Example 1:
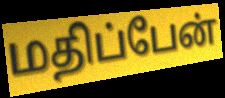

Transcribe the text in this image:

மதிப்பேன்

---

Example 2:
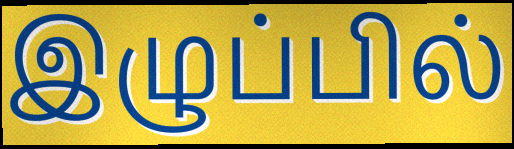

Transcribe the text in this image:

இழுப்பில்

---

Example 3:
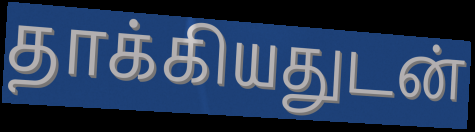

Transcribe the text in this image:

தாக்கியதுடன்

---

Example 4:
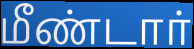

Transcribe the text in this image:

மீண்டார்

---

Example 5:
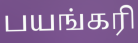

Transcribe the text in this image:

பயங்கரி